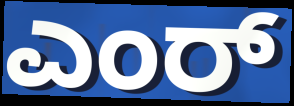
ಎಂರ್